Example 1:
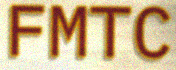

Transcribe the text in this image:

FMTC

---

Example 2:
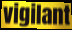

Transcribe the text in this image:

vigilant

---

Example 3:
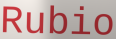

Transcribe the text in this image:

Rubio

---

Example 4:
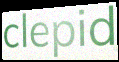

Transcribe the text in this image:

clepid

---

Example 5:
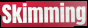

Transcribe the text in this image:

Skimming